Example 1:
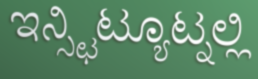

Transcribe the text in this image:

ಇನ್ಸ್ಟಿಟ್ಯೂಟ್ನಲ್ಲಿ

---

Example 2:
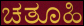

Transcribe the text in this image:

ಚತೂಹಿ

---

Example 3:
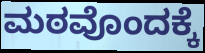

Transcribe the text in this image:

ಮಠವೊಂದಕ್ಕೆ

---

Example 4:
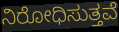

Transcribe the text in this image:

ನಿರೋಧಿಸುತ್ತವೆ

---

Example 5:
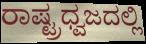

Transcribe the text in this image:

ರಾಷ್ಟ್ರಧ್ವಜದಲ್ಲಿ